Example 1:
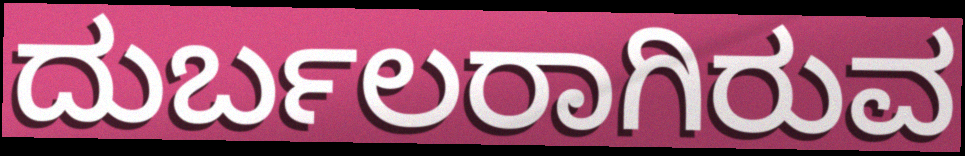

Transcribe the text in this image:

ದುರ್ಬಲರಾಗಿರುವ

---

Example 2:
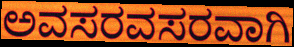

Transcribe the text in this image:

ಅವಸರವಸರವಾಗಿ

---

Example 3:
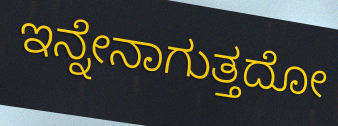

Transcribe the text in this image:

ಇನ್ನೇನಾಗುತ್ತದೋ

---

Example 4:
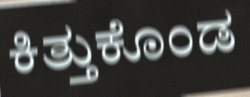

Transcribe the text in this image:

ಕಿತ್ತುಕೊಂಡ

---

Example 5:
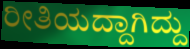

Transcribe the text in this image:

ರೀತಿಯದ್ದಾಗಿದ್ದು